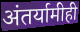
अंतर्यामीही